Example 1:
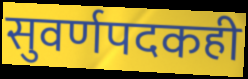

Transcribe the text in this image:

सुवर्णपदकही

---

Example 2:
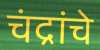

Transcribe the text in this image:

चंद्रांचे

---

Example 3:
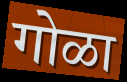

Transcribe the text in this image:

गोळा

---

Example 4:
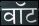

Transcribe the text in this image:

वॉट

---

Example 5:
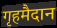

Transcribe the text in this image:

गृहमैदान